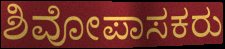
ಶಿವೋಪಾಸಕರು